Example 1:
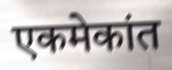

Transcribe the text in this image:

एकमेकांत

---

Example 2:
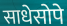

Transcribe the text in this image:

साधेसोपे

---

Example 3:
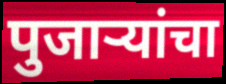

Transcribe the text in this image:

पुजाऱ्यांचा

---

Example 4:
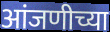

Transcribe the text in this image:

आंजणीच्या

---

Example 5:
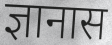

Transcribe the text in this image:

ज्ञानास